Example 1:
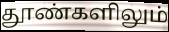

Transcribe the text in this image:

தூண்களிலும்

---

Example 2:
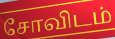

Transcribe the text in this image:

சோவிடம்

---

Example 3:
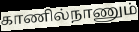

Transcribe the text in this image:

காணில்நாணும்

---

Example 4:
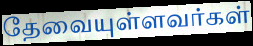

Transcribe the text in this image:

தேவையுள்ளவர்கள்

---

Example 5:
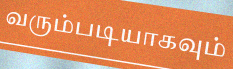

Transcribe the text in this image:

வரும்படியாகவும்